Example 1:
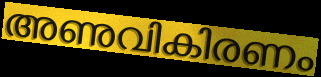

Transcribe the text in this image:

അണുവികിരണം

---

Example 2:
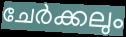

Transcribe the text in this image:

ചേർക്കലും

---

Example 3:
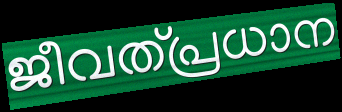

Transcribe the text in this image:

ജീവത്പ്രധാന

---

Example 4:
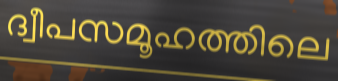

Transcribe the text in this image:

ദ്വീപസമൂഹത്തിലെ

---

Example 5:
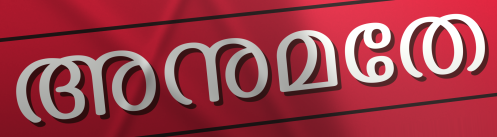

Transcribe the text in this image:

അനുമതേ